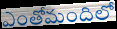
ఎంతోమందిలో